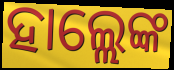
ହାଲ୍ଲେଙ୍କ